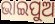
ଭାଇପୁଅ